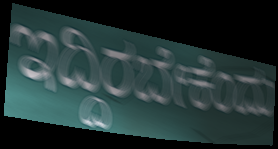
ಇದ್ದಿರಬೇಕೆಂದು